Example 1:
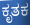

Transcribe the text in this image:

ಕೃತಕ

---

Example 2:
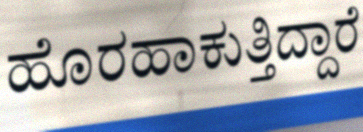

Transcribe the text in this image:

ಹೊರಹಾಕುತ್ತಿದ್ದಾರೆ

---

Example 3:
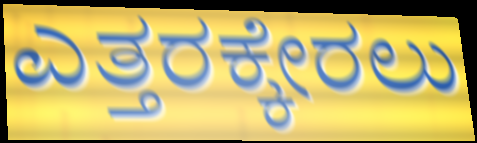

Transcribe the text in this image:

ಎತ್ತರಕ್ಕೇರಲು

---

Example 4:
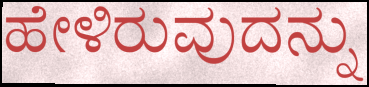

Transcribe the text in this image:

ಹೇಳಿರುವುದನ್ನು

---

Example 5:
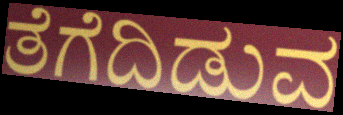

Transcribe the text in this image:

ತೆಗೆದಿಡುವ